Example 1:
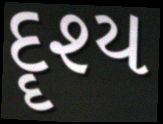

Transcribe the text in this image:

દૄશ્ય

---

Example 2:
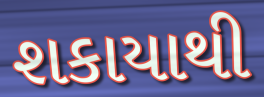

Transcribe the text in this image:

શકાયાથી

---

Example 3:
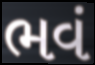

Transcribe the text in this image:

ભવં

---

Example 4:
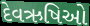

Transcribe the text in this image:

દેવઋષિઓ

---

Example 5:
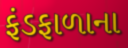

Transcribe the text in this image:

ફંડફાળાના